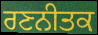
ਰਣਨੀਤਕ